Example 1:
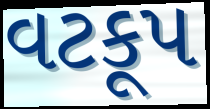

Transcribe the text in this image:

વટકૂપ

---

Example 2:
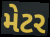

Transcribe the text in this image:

મેટર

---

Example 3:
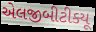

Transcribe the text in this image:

એલજીબીટીક્યૂ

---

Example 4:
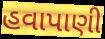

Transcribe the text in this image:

હવાપાણી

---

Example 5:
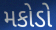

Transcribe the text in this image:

મકોડો